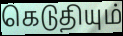
கெடுதியும்